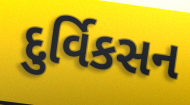
દુર્વિકસન